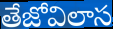
తేజోవిలాస